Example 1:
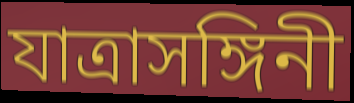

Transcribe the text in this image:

যাত্রাসঙ্গিনী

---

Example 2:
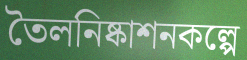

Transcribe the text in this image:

তৈলনিষ্কাশনকল্পে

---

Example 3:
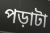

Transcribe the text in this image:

পড়াটা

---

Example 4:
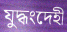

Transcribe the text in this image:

যুদ্ধংদেহী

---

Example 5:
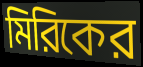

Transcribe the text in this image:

মিরিকের